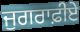
ਜੁਗਰਾਫ਼ੀਏ